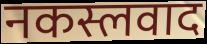
नकस्लवाद